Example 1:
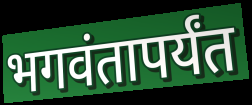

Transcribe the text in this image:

भगवंतापर्यंत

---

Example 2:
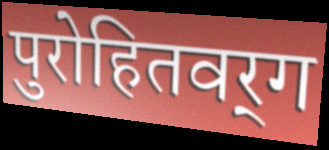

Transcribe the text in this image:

पुरोहितवर्ग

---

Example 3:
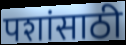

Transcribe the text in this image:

पशांसाठी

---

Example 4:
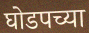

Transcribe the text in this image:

घोडपच्या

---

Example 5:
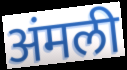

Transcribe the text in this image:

अंमली